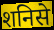
शनिसे